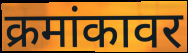
क्रमांकावर